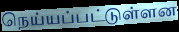
நெய்யப்பட்டுள்ளன